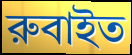
রুবাইত